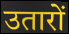
उतारों